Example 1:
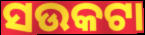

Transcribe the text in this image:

ସଉକଟା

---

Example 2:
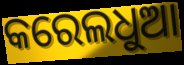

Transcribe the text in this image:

କରେଲଧୁଆ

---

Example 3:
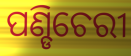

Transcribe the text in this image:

ପଣ୍ଡିଚେରୀ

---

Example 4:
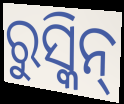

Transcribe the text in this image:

ରୁସ୍କିନ୍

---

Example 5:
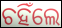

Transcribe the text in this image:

ଚହିଁଲେ